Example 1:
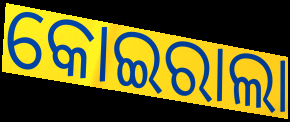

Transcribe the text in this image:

କୋଇରାଲା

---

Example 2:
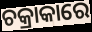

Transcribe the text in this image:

ଚକ୍ରାକାରେ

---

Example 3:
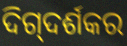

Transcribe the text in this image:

ଦିଗ୍‌ଦର୍ଶକର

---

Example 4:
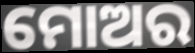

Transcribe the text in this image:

ମୋଅର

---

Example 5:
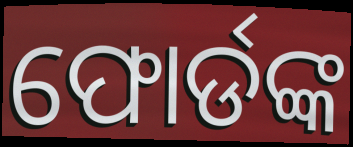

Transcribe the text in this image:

ଫୋର୍ଡଙ୍କ